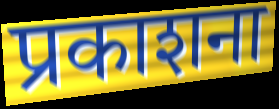
प्रकाशना